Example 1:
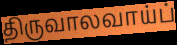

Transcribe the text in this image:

திருவாலவாய்ப்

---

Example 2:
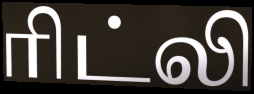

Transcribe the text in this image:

ரிட்லி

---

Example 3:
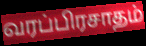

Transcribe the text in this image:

வரப்பிரசாதம்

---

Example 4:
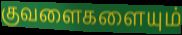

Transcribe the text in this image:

குவளைகளையும்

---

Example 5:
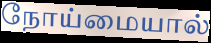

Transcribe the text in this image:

நோய்மையால்